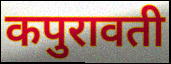
कपुरावती